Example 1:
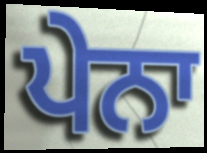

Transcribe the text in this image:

ਪੇਨਾ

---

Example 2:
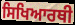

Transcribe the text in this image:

ਸਿਖਿਆਰਥੀ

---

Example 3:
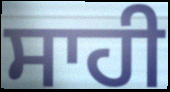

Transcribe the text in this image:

ਸਾਹੀ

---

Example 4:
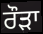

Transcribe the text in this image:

ਰੌੜਾ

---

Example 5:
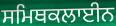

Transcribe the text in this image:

ਸਮਿਥਕਲਾਈਨ